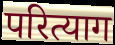
परित्याग